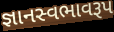
જ્ઞાનસ્વભાવરૂપ